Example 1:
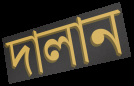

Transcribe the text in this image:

দালান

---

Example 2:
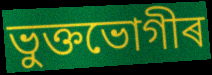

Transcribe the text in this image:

ভুক্তভোগীৰ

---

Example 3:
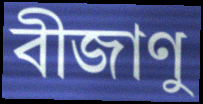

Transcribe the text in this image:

বীজাণু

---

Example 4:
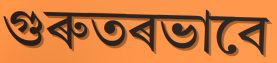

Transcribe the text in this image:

গুৰুতৰভাবে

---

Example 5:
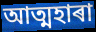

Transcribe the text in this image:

আত্মহাৰা